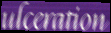
ulceration